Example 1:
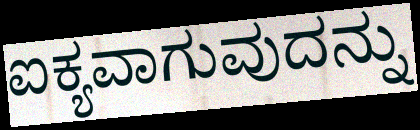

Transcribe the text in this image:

ಐಕ್ಯವಾಗುವುದನ್ನು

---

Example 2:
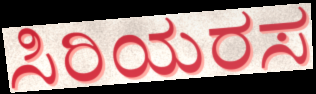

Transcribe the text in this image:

ಸಿರಿಯರಸ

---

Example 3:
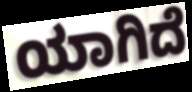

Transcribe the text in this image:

ಯಾಗಿದೆ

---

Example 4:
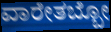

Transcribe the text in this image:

ವಾರೇತಬ್ಬೋ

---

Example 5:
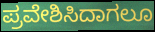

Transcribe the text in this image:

ಪ್ರವೇಶಿಸಿದಾಗಲೂ